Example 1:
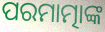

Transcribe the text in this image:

ପରମାତ୍ମାଙ୍କ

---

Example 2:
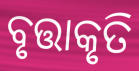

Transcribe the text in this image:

ବୃତ୍ତାକୃତି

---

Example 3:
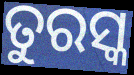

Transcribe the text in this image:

ତୁରସ୍କ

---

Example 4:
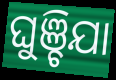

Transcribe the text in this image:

ଘୁଞ୍ଚିଯା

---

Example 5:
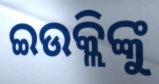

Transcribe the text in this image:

ଇଉକ୍ଲିଙ୍କୁ